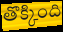
తొక్కింది